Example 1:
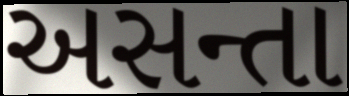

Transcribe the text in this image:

અસન્તા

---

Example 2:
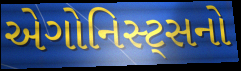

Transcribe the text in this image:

એગોનિસ્ટ્સનો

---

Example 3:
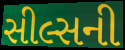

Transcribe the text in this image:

સીલ્સની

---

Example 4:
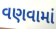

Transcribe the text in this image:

વણવામાં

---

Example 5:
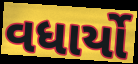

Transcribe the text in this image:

વધાર્યો